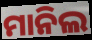
ମାନିଲ